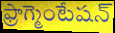
ఫ్రాగ్మెంటేషన్